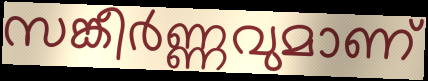
സങ്കീർണ്ണവുമാണ്